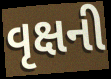
વૃક્ષની